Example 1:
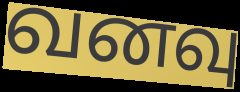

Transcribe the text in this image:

வனவு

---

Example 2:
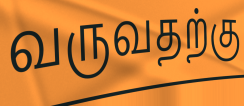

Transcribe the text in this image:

வருவதற்கு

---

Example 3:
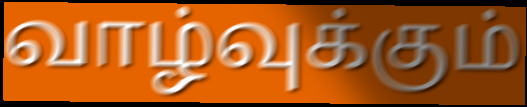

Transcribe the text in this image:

வாழ்வுக்கும்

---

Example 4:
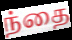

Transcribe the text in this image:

ந்தை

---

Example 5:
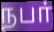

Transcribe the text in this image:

நபர்